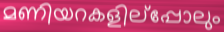
മണിയറകളില്പ്പോലും